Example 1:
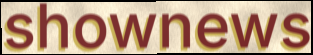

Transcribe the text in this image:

shownews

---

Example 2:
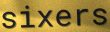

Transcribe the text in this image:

sixers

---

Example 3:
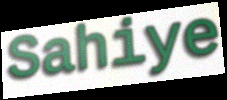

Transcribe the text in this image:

Sahiye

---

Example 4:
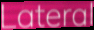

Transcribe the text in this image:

Lateral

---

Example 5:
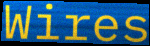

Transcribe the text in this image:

Wires